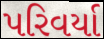
પરિવર્યા